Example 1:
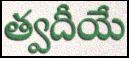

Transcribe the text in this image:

త్వదీయే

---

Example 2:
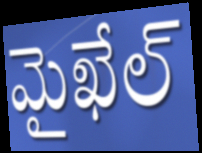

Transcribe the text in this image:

మైఖేల్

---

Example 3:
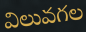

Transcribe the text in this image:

విలువగల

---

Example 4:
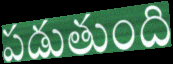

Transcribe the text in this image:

పడుతుంది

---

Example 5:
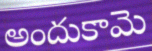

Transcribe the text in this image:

అందుకామె